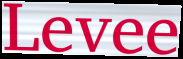
Levee